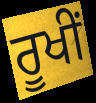
ਰੂਖੀਂ